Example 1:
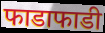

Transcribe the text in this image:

फाडाफाडी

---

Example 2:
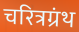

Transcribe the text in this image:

चरित्रग्रंथ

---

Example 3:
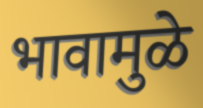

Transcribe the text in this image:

भावामुळे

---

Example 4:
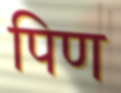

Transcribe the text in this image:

पिण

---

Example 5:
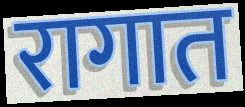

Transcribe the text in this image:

रागात